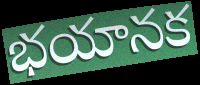
భయానక